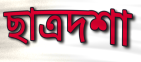
ছাত্রদশা